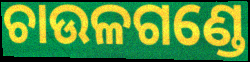
ଚାଉଳଗଣ୍ଡେ